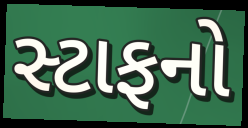
સ્ટાફનો